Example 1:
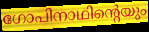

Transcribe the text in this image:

ഗോപിനാഥിന്റെയും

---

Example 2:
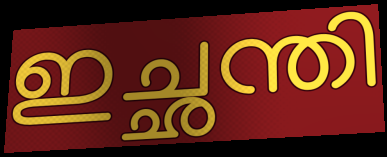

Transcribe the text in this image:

ഇച്ഛന്തി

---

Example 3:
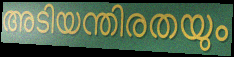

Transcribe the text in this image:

അടിയന്തിരതയും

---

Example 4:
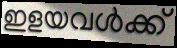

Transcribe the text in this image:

ഇളയവൾക്ക്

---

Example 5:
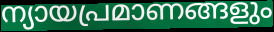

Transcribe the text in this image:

ന്യായപ്രമാണങ്ങളും